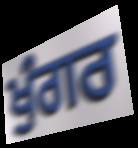
ਖੁੰਗਰ